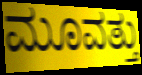
ಮೂವತ್ತು